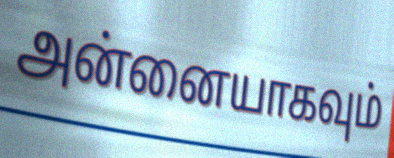
அன்னையாகவும்